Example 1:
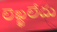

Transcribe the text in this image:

లెఖ్ఖలేదు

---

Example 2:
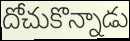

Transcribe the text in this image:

దోచుకొన్నాడు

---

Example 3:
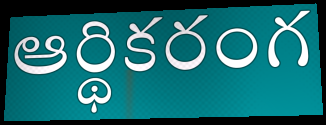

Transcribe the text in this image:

ఆర్థికరంగ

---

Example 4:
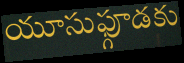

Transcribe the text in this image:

యూసుఫ్గూడకు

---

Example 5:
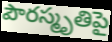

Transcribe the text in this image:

పౌరస్మృతిపై